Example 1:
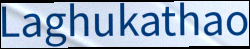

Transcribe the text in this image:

Laghukathao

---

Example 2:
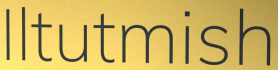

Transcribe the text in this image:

Iltutmish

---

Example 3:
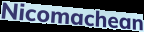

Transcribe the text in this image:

Nicomachean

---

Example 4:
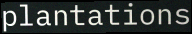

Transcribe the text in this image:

plantations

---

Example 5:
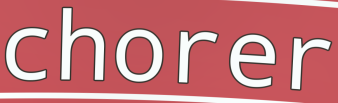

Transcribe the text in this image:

chorer